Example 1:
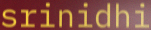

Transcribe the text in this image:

srinidhi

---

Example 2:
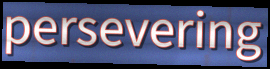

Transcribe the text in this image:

persevering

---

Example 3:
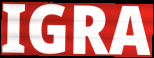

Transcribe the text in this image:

IGRA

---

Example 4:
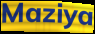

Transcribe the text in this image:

Maziya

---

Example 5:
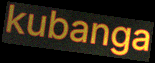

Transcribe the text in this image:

kubanga